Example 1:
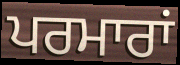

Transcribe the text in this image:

ਪਰਮਾਰਾਂ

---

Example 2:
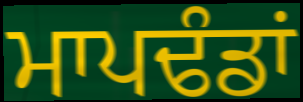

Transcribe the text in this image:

ਮਾਪਢੰਡਾਂ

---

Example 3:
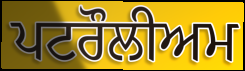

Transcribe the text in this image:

ਪਟਰੌਲੀਅਮ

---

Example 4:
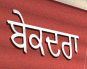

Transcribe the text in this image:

ਬੇਕਦਰਾ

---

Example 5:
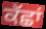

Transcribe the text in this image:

ਕੱਛਾਂ